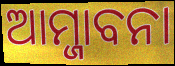
ଆମ୍ଜାବନା